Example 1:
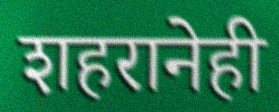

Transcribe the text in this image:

शहरानेही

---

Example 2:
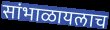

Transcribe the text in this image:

सांभाळायलाच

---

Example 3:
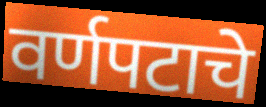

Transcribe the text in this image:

वर्णपटाचे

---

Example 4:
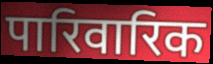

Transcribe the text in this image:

पारिवारिक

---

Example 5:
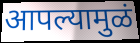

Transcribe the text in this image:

आपल्यामुळं